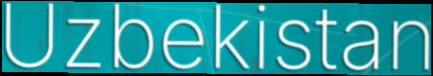
Uzbekistan